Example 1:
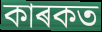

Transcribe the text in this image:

কাৰকত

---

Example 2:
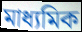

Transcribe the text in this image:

মাধ্যমিক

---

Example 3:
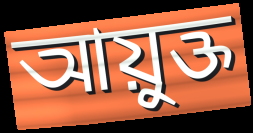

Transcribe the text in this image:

আয়ুক্ত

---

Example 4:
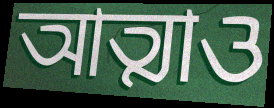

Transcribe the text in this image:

আত্মাও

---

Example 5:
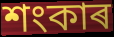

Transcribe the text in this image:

শংকাৰ